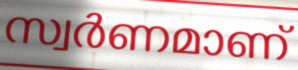
സ്വർണമാണ്